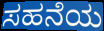
ಸಹನೆಯ